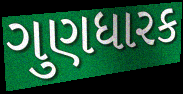
ગુણધારક